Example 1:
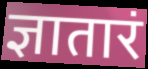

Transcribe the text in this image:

ज्ञातारं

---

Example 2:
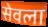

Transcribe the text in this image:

सेवला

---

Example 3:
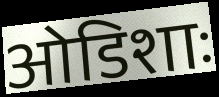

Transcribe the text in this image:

ओडिशाः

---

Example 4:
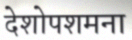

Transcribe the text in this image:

देशोपशमना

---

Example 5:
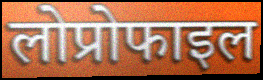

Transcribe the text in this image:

लोप्रोफाइल